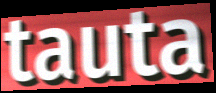
tauta